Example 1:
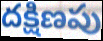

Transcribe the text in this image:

దక్షిణపు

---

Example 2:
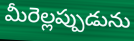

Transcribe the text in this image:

మీరెల్లప్పుడును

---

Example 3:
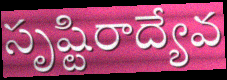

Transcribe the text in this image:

సృష్టిరాద్యేవ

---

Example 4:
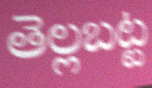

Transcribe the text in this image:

తెల్లబట్ట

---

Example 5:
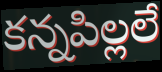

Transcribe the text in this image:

కన్నపిల్లలే